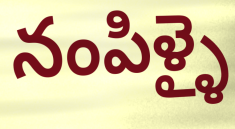
నంపిళ్ళై